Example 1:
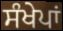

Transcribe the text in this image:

ਸੰਖੇਪਾਂ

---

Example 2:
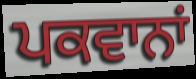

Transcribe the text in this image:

ਪਕਵਾਨਾਂ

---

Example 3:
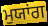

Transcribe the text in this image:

ਮੁਯਾਂਗ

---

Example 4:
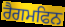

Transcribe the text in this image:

ਰੈਗਮਫਿਨ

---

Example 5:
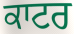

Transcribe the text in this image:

ਕਾਟਰ